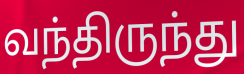
வந்திருந்து